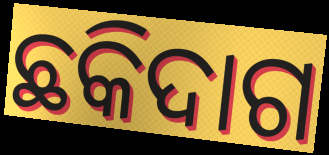
ଛକିଦାଗ